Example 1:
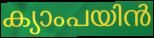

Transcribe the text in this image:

ക്യാംപയിൻ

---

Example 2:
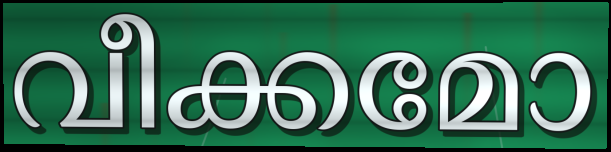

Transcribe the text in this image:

വീക്കമോ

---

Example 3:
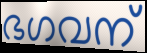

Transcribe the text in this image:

ഭഗവന്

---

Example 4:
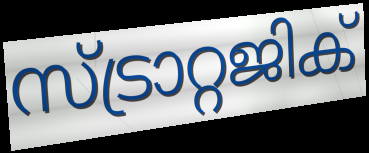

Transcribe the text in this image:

സ്ട്രാറ്റജിക്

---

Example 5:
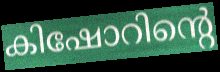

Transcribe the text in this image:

കിഷോറിന്റെ